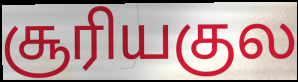
சூரியகுல